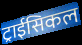
ट्राईसिकल